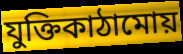
যুক্তিকাঠামোয়